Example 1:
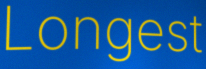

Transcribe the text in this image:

Longest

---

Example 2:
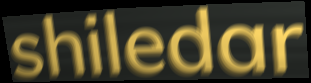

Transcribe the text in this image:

shiledar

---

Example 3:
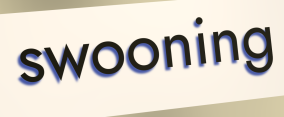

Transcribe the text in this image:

swooning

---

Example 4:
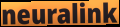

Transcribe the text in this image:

neuralink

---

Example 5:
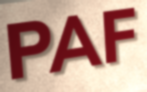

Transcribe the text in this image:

PAF